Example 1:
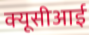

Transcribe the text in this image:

क्यूसीआई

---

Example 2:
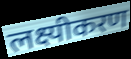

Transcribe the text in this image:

लक्ष्यीकरण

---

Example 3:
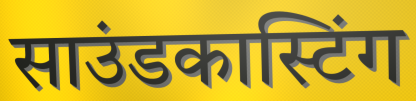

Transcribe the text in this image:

साउंडकास्टिंग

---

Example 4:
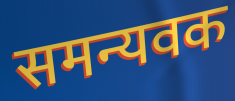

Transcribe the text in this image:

समन्यवक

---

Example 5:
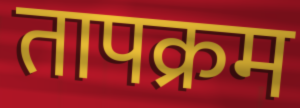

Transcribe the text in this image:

तापक्रम